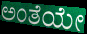
ಅಂತೆಯೇ